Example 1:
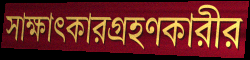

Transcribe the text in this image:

সাক্ষাৎকারগ্রহণকারীর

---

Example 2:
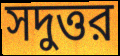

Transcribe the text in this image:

সদুত্তর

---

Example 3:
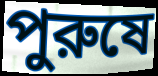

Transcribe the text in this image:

পুরুষে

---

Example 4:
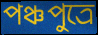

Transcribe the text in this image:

পঞ্চপুত্রে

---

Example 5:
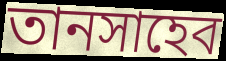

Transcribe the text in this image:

তানসাহেব